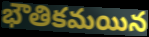
భౌతికమయిన